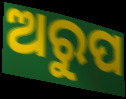
ଅରୁପ